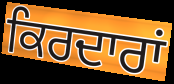
ਕਿਰਦਾਰਾਂ